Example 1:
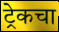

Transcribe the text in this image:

ट्रेकचा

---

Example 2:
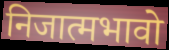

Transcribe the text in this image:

निजात्मभावो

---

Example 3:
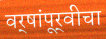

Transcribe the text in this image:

वर्षांपूर्वीचा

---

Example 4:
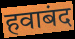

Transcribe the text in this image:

हवाबंद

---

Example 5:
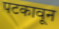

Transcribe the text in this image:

पटकावून